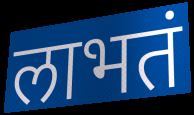
लाभतं